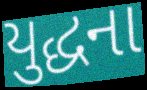
યુદ્ધના